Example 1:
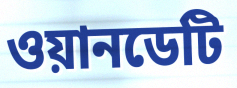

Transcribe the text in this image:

ওয়ানডেটি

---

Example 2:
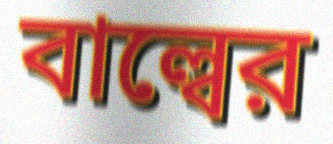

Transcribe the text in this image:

বাল্বের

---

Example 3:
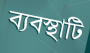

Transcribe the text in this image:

ব্যবস্থাটি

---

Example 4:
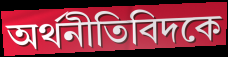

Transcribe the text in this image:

অর্থনীতিবিদকে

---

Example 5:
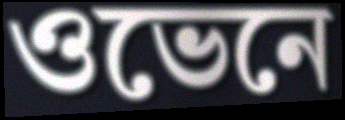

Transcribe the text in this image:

ওভেনে